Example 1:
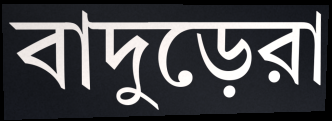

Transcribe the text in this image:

বাদুড়েরা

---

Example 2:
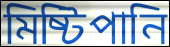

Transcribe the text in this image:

মিষ্টিপানি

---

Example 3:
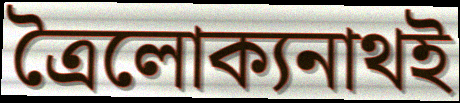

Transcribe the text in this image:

ত্রৈলোক্যনাথই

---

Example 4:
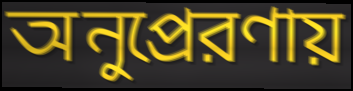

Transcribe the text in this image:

অনুপ্রেরণায়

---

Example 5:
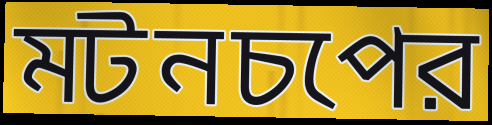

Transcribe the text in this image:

মটনচপের